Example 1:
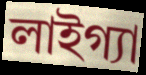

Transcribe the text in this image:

লাইগ্যা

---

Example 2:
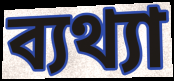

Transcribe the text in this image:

ব্যথ্যা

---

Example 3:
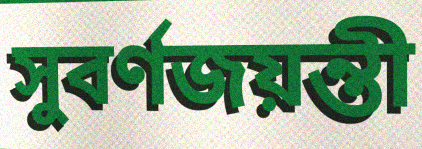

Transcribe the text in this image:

সুবর্ণজয়ন্তী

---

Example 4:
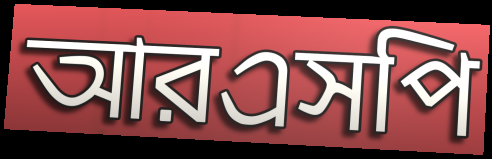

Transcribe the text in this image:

আরএসপি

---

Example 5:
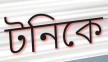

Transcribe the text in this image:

টনিকে